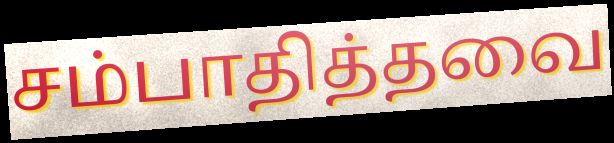
சம்பாதித்தவை